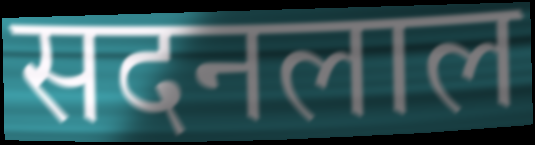
सदनलाल